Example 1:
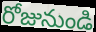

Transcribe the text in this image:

రోజునుండి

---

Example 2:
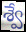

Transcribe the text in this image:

శ్వే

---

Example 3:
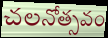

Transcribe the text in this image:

చలనోత్సవం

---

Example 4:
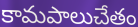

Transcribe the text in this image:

కామపాలుచేతం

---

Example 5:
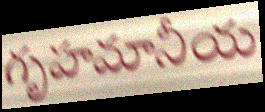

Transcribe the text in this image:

గృహమానీయ